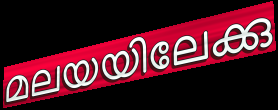
മലയയിലേക്കു